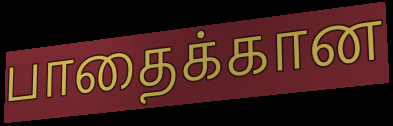
பாதைக்கான